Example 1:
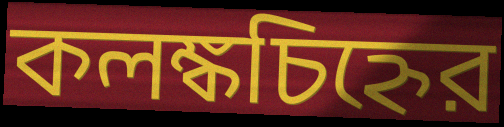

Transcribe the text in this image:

কলঙ্কচিহ্নের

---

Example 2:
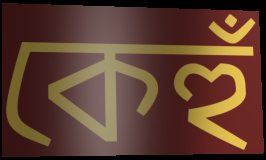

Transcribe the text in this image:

কেহুঁ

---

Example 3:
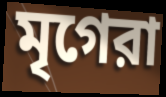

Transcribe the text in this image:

মৃগেরা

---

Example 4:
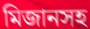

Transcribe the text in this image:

মিজানসহ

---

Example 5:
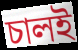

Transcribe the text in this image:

চালই